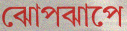
ঝোপঝাপে